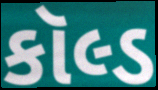
કૉલ્ડ